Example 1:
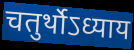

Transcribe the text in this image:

चतुर्थोऽध्याय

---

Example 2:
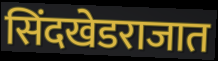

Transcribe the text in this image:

सिंदखेडराजात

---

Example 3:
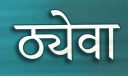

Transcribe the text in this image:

ठ्येवा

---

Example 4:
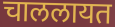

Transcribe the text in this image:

चाललायत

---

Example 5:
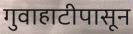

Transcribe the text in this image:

गुवाहाटीपासून